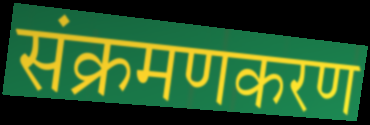
संक्रमणकरण